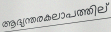
ആഭ്യന്തരകലാപത്തില്